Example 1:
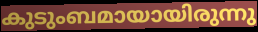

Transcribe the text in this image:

കുടുംബമായായിരുന്നു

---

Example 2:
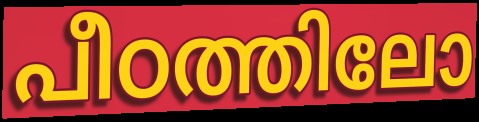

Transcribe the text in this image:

പീഠത്തിലോ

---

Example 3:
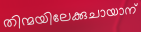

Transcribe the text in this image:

തിന്മയിലേക്കുചായാന്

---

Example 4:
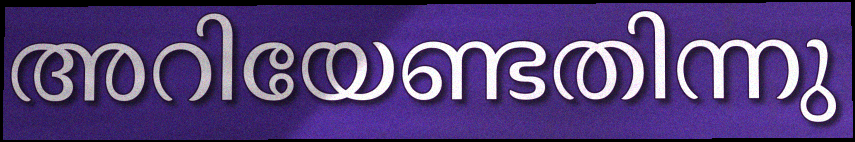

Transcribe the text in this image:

അറിയേണ്ടതിന്നു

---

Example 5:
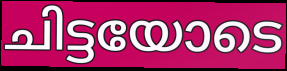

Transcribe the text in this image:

ചിട്ടയോടെ